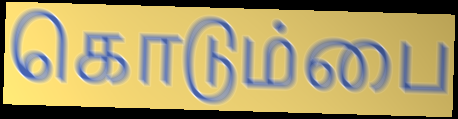
கொடும்பை